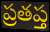
ప్రతప్త